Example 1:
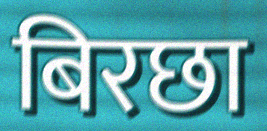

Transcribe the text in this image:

बिरछा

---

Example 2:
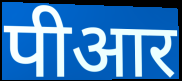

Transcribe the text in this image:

पीआर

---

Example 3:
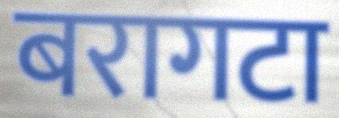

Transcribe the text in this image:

बरागटा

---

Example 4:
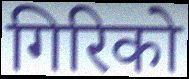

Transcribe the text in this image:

गिरिको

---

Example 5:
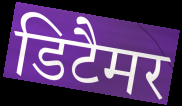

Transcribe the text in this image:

डिटैमर